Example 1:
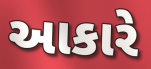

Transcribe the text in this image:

આકારે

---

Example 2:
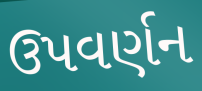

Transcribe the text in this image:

ઉપવર્ણન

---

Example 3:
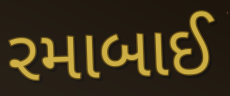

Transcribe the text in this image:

રમાબાઈ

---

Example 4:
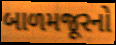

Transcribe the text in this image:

બાળમજૂરનો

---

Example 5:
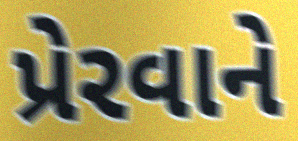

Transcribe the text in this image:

પ્રેરવાને